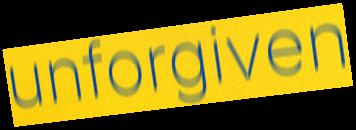
unforgiven